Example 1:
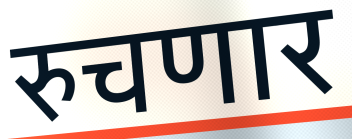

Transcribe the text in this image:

रुचणार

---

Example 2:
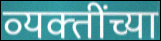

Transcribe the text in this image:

व्‍यक्‍तींच्‍या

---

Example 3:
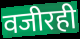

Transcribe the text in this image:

वजीरही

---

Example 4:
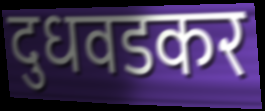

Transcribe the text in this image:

दुधवडकर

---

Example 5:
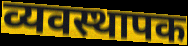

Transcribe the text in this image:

व्यवस्थापक